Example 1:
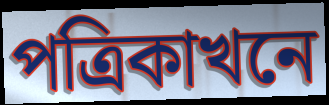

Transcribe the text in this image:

পত্ৰিকাখনে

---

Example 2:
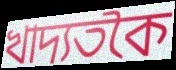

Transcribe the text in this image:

খাদ্যতকৈ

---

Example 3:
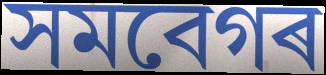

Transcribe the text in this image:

সমবেগৰ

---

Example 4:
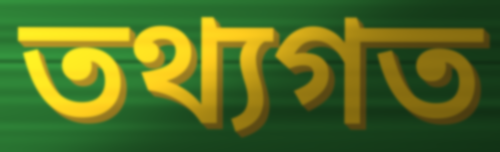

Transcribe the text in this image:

তথ্যগত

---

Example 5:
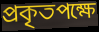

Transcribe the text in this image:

প্ৰকৃতপক্ষে